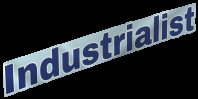
Industrialist